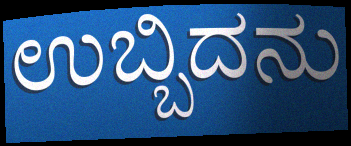
ಉಬ್ಬಿದನು